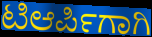
ಟಿಆರ್ಪಿಗಾಗಿ